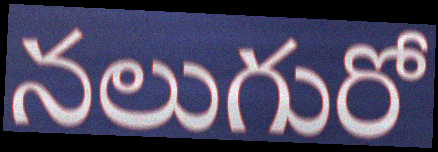
నలుగురో